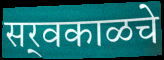
सर्वकाळचे